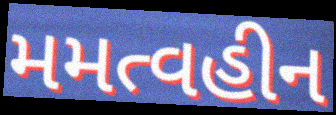
મમત્વહીન